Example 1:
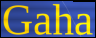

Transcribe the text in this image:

Gaha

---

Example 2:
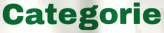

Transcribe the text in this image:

Categorie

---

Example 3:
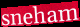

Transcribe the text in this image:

sneham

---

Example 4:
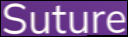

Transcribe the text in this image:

Suture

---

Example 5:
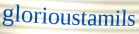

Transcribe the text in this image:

glorioustamils